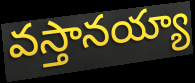
వస్తానయ్యా